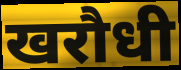
खरौधी